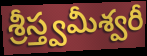
శ్రీస్త్వమీశ్వరీ